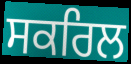
ਸਕਰਿਲ